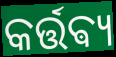
କର୍ତ୍ତଵ୍ୟ